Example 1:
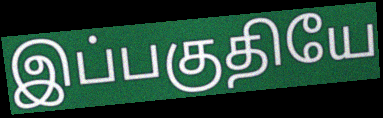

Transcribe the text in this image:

இப்பகுதியே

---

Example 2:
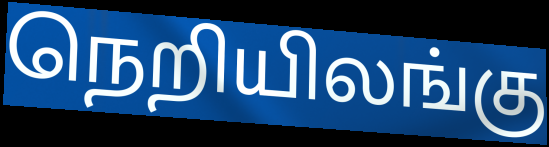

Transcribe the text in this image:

நெறியிலங்கு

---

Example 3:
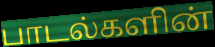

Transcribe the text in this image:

பாடல்களின்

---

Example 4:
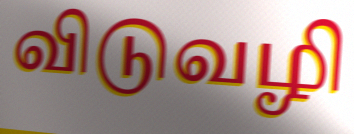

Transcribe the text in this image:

விடுவழி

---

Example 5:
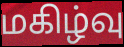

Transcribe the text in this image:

மகிழ்வு